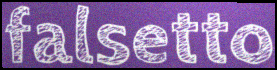
falsetto